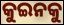
କୁଇନକୁ